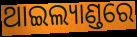
ଥାଇଲ୍ୟାଣ୍ଡରେ